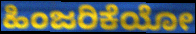
ಹಿಂಜರಿಕೆಯೋ